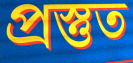
প্ৰস্তুত